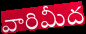
వారిమీద